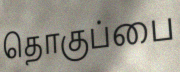
தொகுப்பை